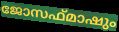
ജോസഫ്മാഷും